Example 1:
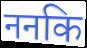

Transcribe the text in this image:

ननकि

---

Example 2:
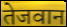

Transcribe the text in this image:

तेजवान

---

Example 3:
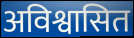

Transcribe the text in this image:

अविश्वासित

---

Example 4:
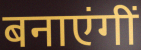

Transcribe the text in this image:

बनाएंगीं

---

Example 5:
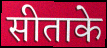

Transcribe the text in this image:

सीताके